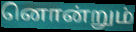
னொன்றும்